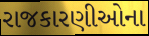
રાજકારણીઓના